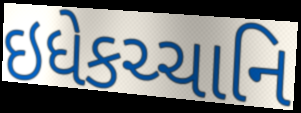
ઇધેકચ્ચાનિ